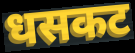
धसकट